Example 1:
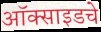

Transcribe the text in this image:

ऑक्साइडचे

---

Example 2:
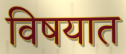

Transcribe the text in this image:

विषयात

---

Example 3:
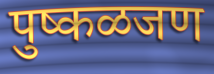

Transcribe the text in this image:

पुष्कळजण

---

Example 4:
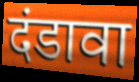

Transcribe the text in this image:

दंडावा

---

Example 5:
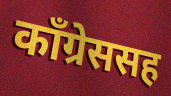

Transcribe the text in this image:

काँग्रेससह